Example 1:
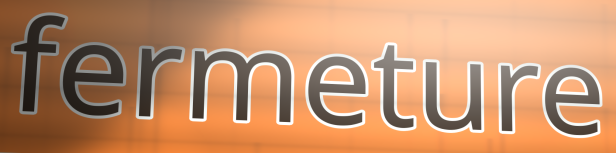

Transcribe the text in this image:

fermeture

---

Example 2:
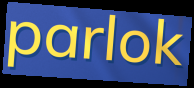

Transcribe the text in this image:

parlok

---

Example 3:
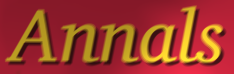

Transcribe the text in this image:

Annals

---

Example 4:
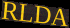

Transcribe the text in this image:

RLDA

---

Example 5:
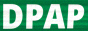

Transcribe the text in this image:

DPAP